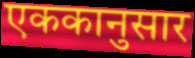
एककानुसार